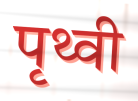
पृथ्वी